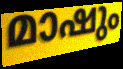
മാഷും